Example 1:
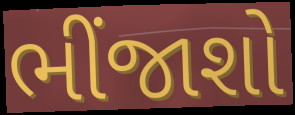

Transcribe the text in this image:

ભીંજાશો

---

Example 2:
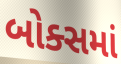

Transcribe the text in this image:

બોક્સમાં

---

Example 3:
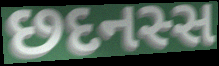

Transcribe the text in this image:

છદનસ્સ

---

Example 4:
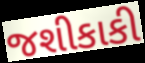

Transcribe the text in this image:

જશીકાકી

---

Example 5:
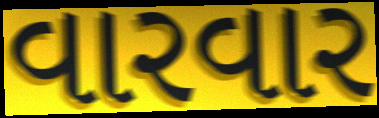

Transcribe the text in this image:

વારવાર